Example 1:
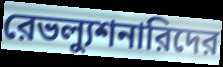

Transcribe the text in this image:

রেভল্যুশনারিদের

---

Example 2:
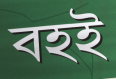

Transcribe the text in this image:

বহই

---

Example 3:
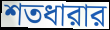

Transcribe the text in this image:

শতধারার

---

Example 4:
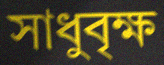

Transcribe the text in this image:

সাধুবৃক্ষ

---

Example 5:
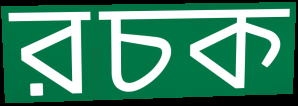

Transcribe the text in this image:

রচক